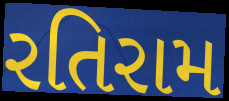
રતિરામ